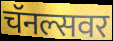
चॅनल्सवर